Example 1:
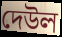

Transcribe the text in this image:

দেউল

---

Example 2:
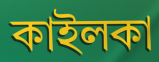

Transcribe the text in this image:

কাইলকা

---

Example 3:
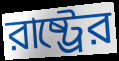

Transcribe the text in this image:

রাষ্ট্রের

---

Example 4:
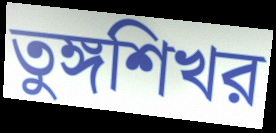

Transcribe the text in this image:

তুঙ্গশিখর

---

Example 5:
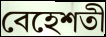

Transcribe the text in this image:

বেহেশতী